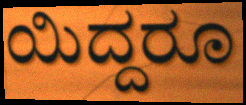
ಯಿದ್ದರೂ